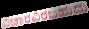
ವಿಚಾರವಿರಬಹುದು